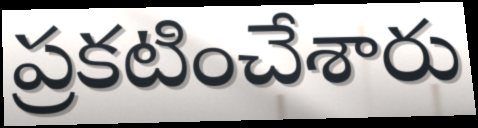
ప్రకటించేశారు